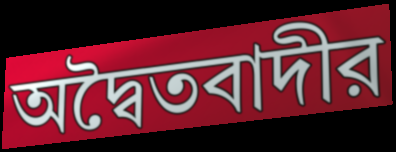
অদ্বৈতবাদীর